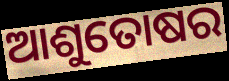
ଆଶୁତୋଷର